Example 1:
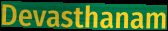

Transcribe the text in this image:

Devasthanam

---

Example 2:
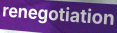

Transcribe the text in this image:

renegotiation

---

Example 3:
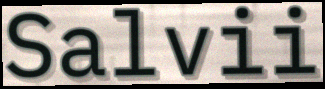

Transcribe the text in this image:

Salvii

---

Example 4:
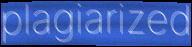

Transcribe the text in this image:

plagiarized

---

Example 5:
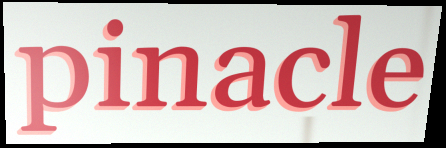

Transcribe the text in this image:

pinacle